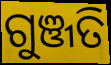
ଗୁଞ୍ଜତି